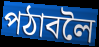
পঠাবলৈ